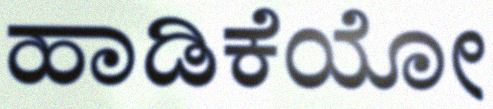
ಹಾಡಿಕೆಯೋ